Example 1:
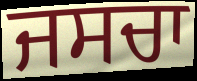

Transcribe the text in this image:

ਜਸਚਾ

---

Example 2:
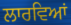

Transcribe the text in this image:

ਲਾਰਵਿਆਂ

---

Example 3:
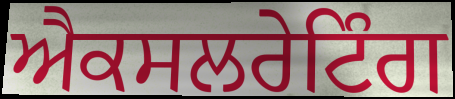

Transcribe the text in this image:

ਐਕਸਲਰੇਟਿੰਗ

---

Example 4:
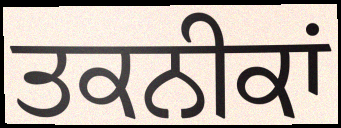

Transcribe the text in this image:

ਤਕਨੀਕਾਂ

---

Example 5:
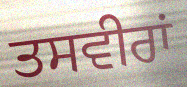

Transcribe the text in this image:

ਤਸਵੀਰਾਂ